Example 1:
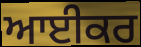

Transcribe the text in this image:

ਆਈਕਰ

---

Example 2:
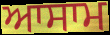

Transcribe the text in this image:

ਆਸਾਮ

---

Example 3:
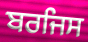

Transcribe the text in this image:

ਬਰਜਿਸ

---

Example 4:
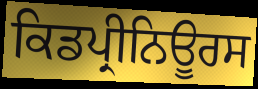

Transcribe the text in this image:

ਕਿਡਪ੍ਰੀਨਿਊਰਸ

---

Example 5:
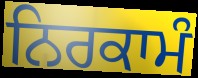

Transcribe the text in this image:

ਨਿਰਕਾਮੰ